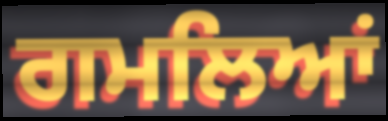
ਗਮਲਿਆਂ